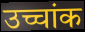
उच्चांक